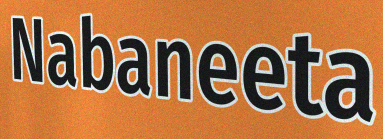
Nabaneeta